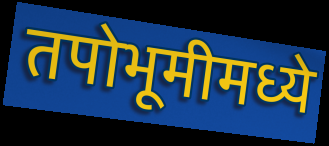
तपोभूमीमध्ये